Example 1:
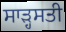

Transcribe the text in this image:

ਸਾੜ੍ਹਸਤੀ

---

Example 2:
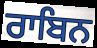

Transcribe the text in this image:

ਰਾਬਿਨ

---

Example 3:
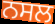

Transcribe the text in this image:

ਨਸਲ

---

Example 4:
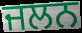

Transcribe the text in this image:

ਜਲਨ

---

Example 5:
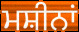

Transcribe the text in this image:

ਮਸ਼ੀਨਾਂ